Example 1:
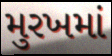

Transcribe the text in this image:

મુરખમાં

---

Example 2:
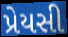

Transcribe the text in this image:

પ્રેયસી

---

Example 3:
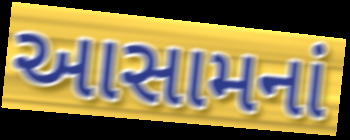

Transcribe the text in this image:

આસામનાં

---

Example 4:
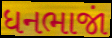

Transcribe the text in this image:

ધનભાજાં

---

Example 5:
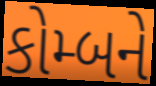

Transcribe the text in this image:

કોમ્બને